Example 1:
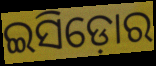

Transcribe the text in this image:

ଇସିଡ଼ୋର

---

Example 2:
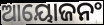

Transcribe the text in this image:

ଆୟୋଜନଂ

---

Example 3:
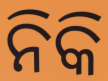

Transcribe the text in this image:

ନିକି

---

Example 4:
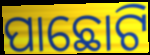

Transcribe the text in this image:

ପାଛୋଟି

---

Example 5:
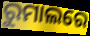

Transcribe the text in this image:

ରୁମାଲରେ